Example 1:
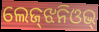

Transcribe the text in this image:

ଲେଜ୍‌ଝନିଓଭ୍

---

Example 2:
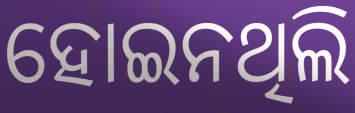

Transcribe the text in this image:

ହୋଇନଥିଲି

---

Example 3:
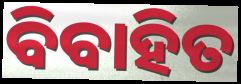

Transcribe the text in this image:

ବିବାହିତ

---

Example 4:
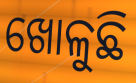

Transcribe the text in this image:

ଖୋଳୁଛି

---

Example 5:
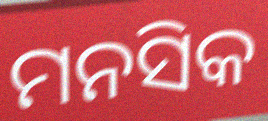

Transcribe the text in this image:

ମନସିକ